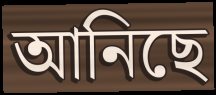
আনিছে